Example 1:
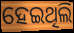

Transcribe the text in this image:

ହେଇଥିଲି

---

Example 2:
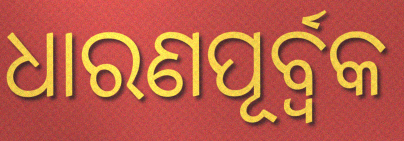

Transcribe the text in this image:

ଧାରଣପୂର୍ବ୍ବକ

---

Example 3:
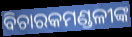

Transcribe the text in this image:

ବିଚାରକମଣ୍ଡଳୀଙ୍କ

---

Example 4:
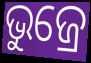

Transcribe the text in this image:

ଭୁଜ୍ରେ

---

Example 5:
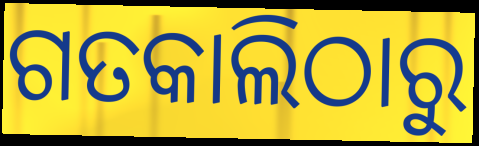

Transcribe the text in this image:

ଗତକାଲିଠାରୁ